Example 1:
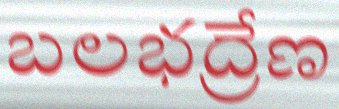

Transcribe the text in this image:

బలభద్రేణ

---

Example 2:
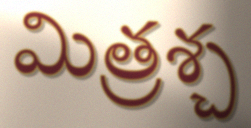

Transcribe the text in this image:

మిత్రశ్చ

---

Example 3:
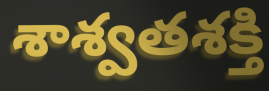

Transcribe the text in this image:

శాశ్వతశక్తి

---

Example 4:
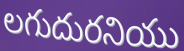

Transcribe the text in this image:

లగుదురనియు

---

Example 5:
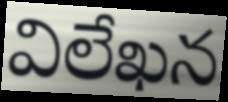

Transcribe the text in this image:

విలేఖన